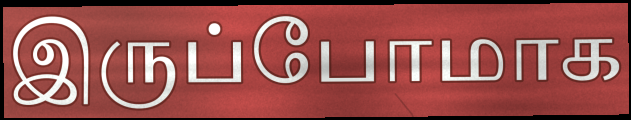
இருப்போமாக